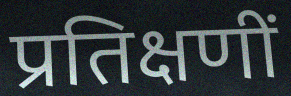
प्रतिक्षणीं